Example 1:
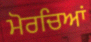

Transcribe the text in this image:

ਮੋਰਚਿਆਂ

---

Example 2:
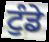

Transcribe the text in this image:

ਟੁੰਡੇ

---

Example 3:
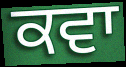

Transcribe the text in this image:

ਕਵਾ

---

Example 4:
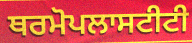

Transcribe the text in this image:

ਥਰਮੋਪਲਾਸਟੀਟੀ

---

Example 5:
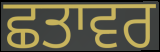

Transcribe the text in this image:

ਛਤਾਵਰ